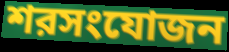
শরসংযোজন